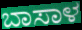
ಬಾಸಾಳ